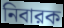
নিবারক